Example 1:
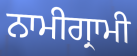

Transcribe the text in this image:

ਨਾਮੀਗ੍ਰਾਮੀ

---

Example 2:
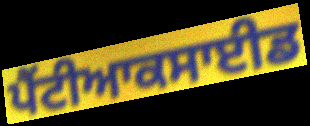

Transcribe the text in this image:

ਪੈਂਟੀਆਕਸਾਈਡ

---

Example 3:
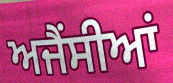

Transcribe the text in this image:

ਅਜੈਂਸੀਆਂ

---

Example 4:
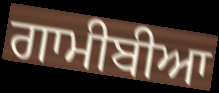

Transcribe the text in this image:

ਗਾਮੀਬੀਆ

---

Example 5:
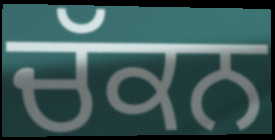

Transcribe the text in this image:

ਚੱਕਨ